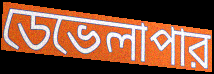
ডেভেলাপার